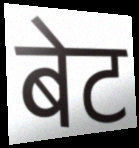
बेट